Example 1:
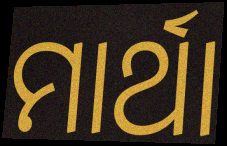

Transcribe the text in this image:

ମାର୍ଥା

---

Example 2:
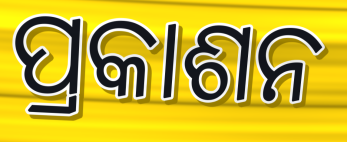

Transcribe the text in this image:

ପ୍ରକାଶନ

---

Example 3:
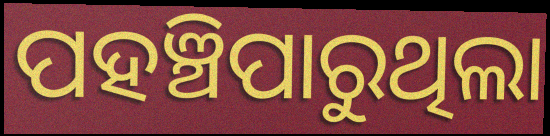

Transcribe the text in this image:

ପହଞ୍ଚିପାରୁଥିଲା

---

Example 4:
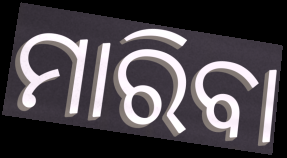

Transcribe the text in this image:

ମାରିବା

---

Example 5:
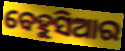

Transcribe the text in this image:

ବେହୁସିଆର